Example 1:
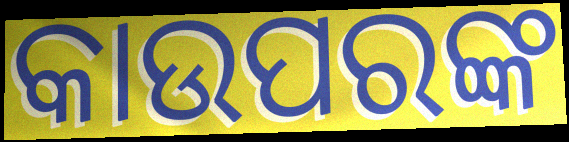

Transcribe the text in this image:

କାଉପରଙ୍କ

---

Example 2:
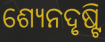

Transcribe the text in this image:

ଶ୍ୟେନଦୃଷ୍ଟି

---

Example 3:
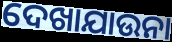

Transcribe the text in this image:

ଦେଖାଯାଉନା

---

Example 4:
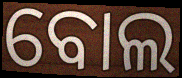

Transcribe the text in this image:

ବୋଲ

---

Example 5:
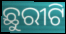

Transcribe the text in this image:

ଛୁରୀଟି